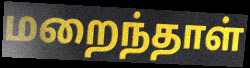
மறைந்தாள்